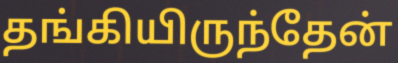
தங்கியிருந்தேன்